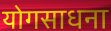
योगसाधना